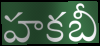
హకబీ